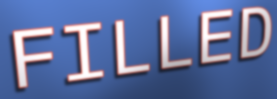
FILLED